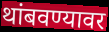
थांबवण्यावर